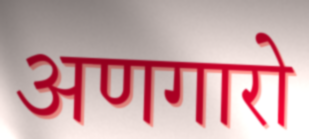
अणगारो